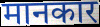
मानकार